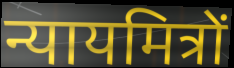
न्यायमित्रों